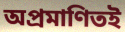
অপ্রমাণিতই